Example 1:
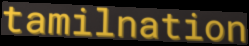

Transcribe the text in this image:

tamilnation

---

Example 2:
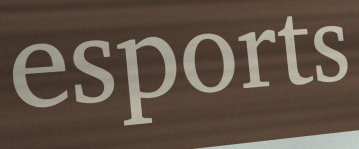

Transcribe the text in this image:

esports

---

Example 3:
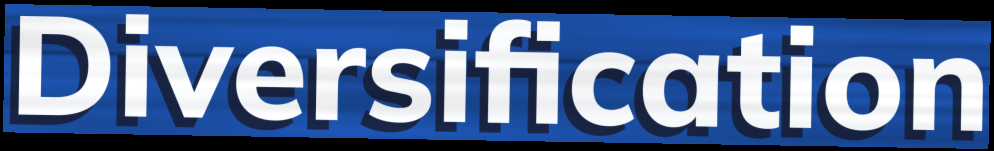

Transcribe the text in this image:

Diversification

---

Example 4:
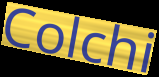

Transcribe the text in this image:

Colchi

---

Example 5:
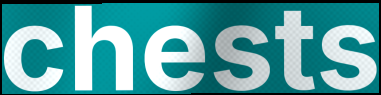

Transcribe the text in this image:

chests